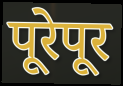
पूरेपूर